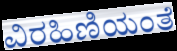
ವಿರಹಿಣಿಯಂತೆ